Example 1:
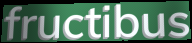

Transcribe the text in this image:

fructibus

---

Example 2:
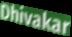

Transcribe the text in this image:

Dhivakar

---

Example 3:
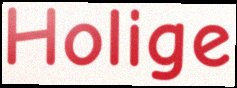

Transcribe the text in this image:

Holige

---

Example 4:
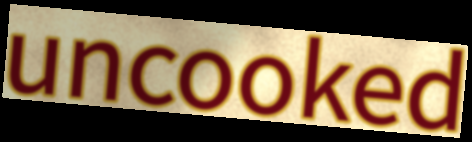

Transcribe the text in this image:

uncooked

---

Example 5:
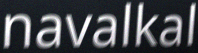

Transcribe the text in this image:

navalkal